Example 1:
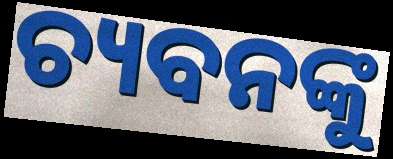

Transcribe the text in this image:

ଚ୍ୟବନଙ୍କୁ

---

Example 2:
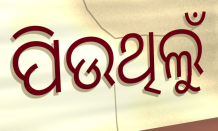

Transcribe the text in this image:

ପିଉଥିଲୁଁ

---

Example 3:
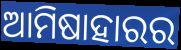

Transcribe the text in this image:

ଆମିଷାହାରର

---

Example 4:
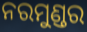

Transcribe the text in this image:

ନରମୁଣ୍ଡର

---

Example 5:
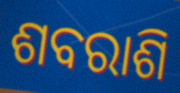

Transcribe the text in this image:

ଶବରାଶି